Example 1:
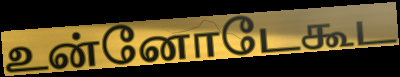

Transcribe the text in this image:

உன்னோடேகூட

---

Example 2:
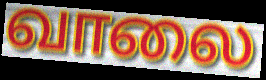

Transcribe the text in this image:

வாலை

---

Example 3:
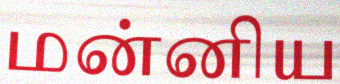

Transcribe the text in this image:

மன்னிய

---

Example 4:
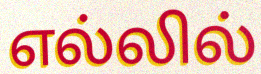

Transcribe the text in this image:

எல்லில்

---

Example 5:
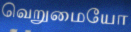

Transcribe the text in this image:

வெறுமையோ